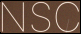
NSC